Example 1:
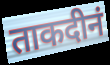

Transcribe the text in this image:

ताकदीनं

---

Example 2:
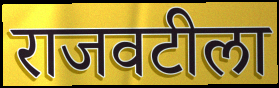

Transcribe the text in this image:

राजवटीला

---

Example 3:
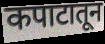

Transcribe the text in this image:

कपाटातून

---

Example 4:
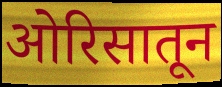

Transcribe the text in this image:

ओरिसातून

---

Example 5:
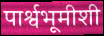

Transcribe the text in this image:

पार्श्वभूमीशी